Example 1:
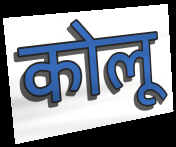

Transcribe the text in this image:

कोलू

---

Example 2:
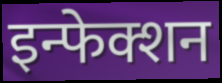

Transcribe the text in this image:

इन्‍फेक्‍शन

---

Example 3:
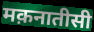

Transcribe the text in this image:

मक़नातीसी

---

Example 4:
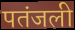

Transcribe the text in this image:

पतंजली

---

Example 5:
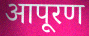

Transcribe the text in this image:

आपूरण